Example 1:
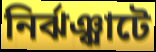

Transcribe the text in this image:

নির্ঝঞ্ঝাটে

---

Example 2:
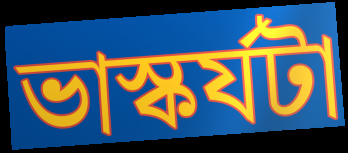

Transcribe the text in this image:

ভাস্কর্যটা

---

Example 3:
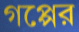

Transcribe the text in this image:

গপ্পের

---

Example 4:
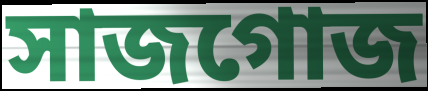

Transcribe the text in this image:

সাজগোজ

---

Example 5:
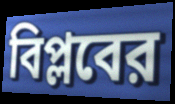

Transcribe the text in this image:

বিপ্লবের